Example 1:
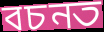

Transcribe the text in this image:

বচনত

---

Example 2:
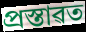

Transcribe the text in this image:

প্ৰস্তাৱত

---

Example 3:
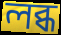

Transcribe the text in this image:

লব্ধ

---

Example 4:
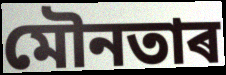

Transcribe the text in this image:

মৌনতাৰ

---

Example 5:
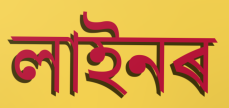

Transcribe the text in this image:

লাইনৰ